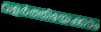
വളർത്തിയേക്കാം